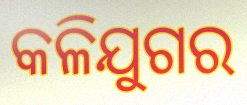
କଳିଯୁଗର